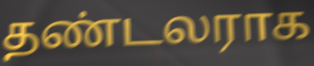
தண்டலராக